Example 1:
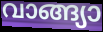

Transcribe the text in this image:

വാങ്ങ്യാ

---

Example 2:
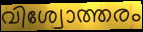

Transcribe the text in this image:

വിശ്വോത്തരം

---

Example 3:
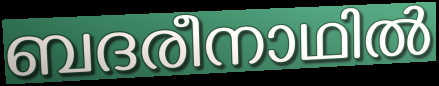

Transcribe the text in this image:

ബദരീനാഥിൽ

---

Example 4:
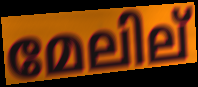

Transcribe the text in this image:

മേലില്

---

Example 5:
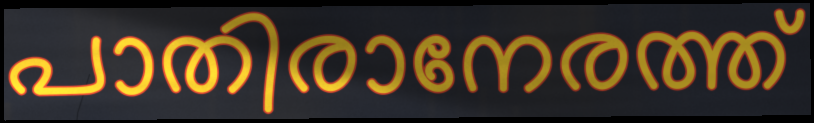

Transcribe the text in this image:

പാതിരാനേരത്ത്